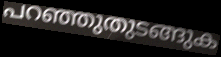
പറഞ്ഞുതുടങ്ങുക